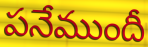
పనేముందీ